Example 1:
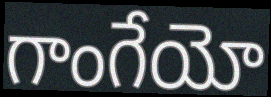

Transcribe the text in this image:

గాంగేయో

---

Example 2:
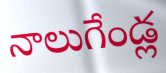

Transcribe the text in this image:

నాలుగేండ్ల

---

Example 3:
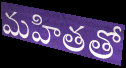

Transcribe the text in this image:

మహితతో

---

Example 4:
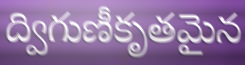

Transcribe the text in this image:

ద్విగుణీకృతమైన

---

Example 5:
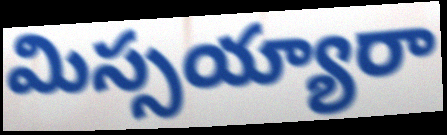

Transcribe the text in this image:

మిస్సయ్యారా